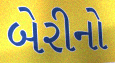
બેરીનો